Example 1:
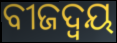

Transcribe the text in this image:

ବୀଜଦ୍ଵୟ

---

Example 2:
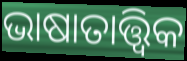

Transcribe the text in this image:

ଭାଷାତାତ୍ତ୍ୱିକ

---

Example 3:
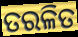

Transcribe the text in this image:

ତରଳିତ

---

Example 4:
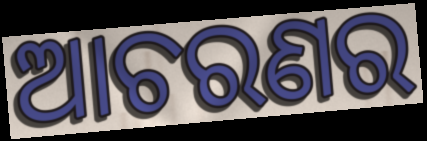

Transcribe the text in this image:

ଆଚରଣର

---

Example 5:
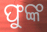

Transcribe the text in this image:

ଫୁଙ୍କ